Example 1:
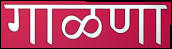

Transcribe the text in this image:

गाळणा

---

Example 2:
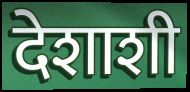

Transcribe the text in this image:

देशाशी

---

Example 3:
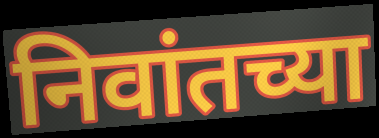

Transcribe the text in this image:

निवांतच्या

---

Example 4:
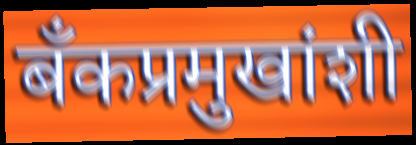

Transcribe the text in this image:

बँकप्रमुखांशी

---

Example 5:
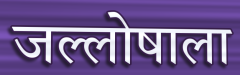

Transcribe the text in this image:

जल्लोषाला